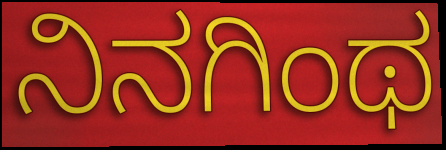
ನಿನಗಿಂಥ